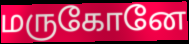
மருகோனே